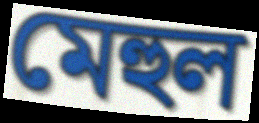
মেহুল